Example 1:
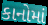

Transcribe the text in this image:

કાનોમાં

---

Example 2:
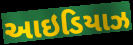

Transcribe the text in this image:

આઇડિયાઝ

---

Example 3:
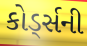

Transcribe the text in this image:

કોર્ડ્સની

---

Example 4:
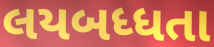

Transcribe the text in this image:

લયબધ્ધતા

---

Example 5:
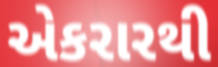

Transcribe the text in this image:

એકરારથી